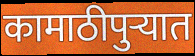
कामाठीपुर्‍यात